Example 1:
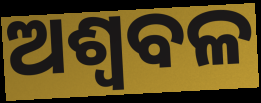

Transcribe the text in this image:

ଅଶ୍ୱବଳ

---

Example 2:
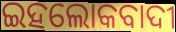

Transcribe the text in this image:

ଇହଲୋକବାଦୀ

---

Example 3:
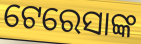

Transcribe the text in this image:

ଟେରେସାଙ୍କ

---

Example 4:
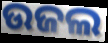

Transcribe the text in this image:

ଉଜଲ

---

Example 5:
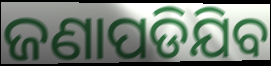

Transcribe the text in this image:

ଜଣାପଡିଯିବ